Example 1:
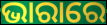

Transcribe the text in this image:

ଭାରାରେ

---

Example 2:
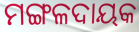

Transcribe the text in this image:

ମଙ୍ଗଳଦାୟକ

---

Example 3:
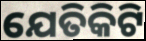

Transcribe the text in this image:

ଯେତିକିଟି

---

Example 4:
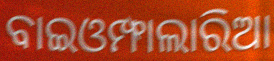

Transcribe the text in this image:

ବାଇଓମ୍ଫାଲାରିଆ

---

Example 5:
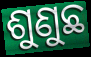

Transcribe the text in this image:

ଶୁଣୁଛ